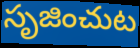
సృజించుట